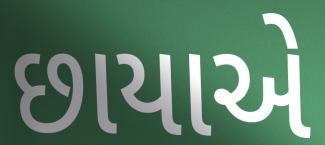
છાયાએ